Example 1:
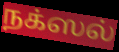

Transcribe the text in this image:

நக்ஸல்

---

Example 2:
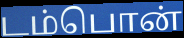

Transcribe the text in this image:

டம்பொன்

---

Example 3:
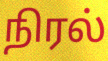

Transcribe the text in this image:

நிரல்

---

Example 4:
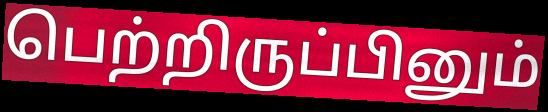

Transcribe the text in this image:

பெற்றிருப்பினும்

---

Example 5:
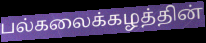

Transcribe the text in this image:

பல்கலைக்கழத்தின்